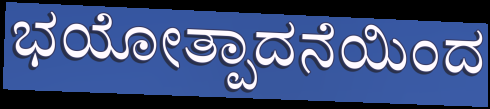
ಭಯೋತ್ಪಾದನೆಯಿಂದ